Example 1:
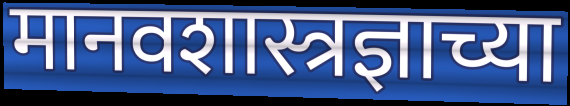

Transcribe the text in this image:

मानवशास्त्रज्ञाच्या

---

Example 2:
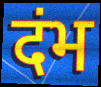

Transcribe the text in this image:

दंभ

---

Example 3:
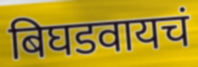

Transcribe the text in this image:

बिघडवायचं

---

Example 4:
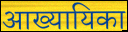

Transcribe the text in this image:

आख्यायिका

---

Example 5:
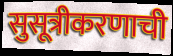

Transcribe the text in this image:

सुसूत्रीकरणाची